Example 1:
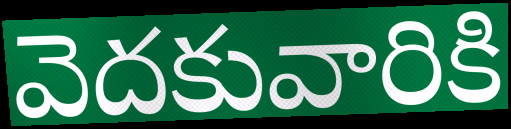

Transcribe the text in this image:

వెదకువారికి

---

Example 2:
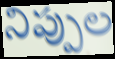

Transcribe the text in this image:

నిప్పుల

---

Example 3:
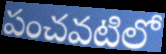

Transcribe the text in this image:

పంచవటిలో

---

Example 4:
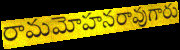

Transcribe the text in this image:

రామమోహనరావుగారు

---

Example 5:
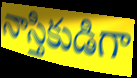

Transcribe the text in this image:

నాస్తికుడిగా